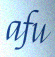
afu